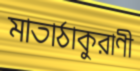
মাতাঠাকুরাণী